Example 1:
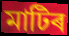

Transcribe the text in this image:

মাটিৰ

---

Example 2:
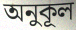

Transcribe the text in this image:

অনুকূল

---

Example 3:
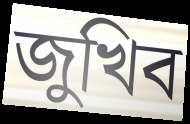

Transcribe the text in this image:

জুখিব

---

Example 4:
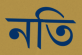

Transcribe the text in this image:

নতি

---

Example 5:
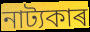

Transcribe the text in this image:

নাট্যকাৰ